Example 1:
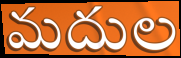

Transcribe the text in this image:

మదుల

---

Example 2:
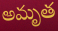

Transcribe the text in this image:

అమృత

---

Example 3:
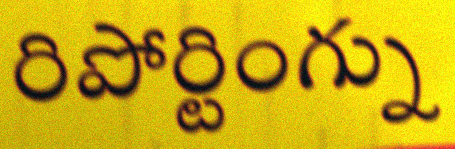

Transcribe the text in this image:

రిపోర్టింగ్ను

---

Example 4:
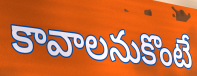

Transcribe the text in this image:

కావాలనుకొంటే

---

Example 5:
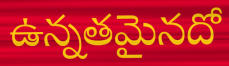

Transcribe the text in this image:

ఉన్నతమైనదో